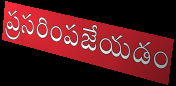
ప్రసరింపజేయడం